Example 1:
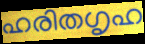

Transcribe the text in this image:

ഹരിതഗൃഹ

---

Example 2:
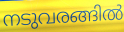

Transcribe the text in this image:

നടുവരങ്ങിൽ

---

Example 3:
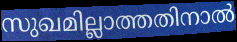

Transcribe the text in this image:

സുഖമില്ലാത്തതിനാൽ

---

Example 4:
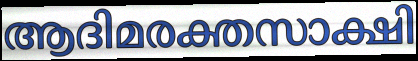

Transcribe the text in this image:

ആദിമരക്തസാക്ഷി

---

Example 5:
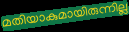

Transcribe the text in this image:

മതിയാകുമായിരുന്നില്ല